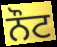
ਨੌਟ